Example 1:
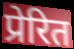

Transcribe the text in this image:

प्रेरित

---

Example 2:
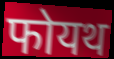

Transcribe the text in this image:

फोयथ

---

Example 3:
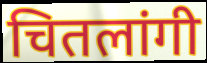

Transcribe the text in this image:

चितलांगी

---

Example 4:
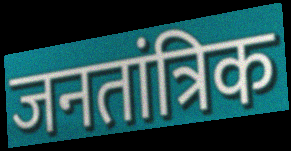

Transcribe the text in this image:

जनतांत्रिक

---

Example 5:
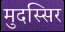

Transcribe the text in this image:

मुदस्सिर